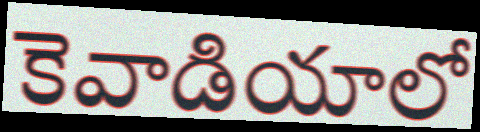
కెవాడియాలో